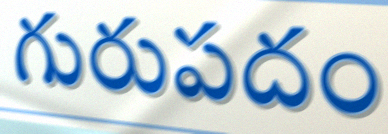
గురుపదం